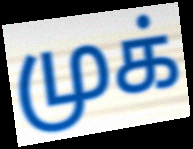
முக்